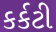
કર્કટી